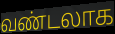
வண்டலாக